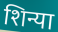
शिन्या